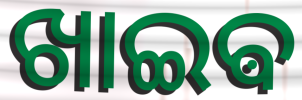
ଖାଇଵ